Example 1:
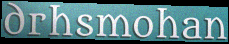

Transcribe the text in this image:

drhsmohan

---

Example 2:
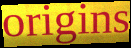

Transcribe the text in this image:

origins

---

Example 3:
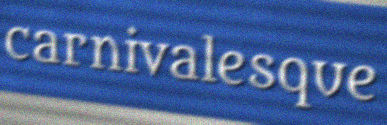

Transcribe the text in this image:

carnivalesque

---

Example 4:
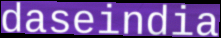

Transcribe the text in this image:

daseindia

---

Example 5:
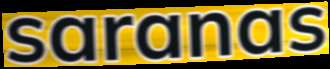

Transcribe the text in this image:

saranas